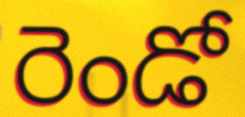
రెండో